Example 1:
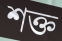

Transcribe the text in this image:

শক্ত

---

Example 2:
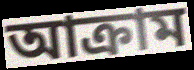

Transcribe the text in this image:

আক্ৰাম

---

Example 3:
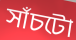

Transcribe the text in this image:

সাঁচটো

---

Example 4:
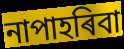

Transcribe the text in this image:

নাপাহৰিবা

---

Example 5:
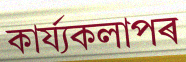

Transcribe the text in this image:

কাৰ্য্যকলাপৰ